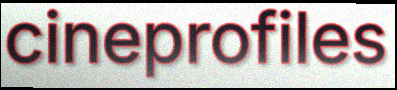
cineprofiles